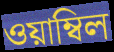
ওয়াম্বিল